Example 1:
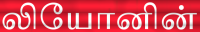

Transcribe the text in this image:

லியோனின்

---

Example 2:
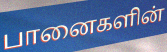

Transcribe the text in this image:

பானைகளின்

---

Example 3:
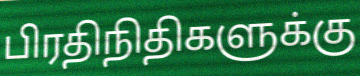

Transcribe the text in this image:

பிரதிநிதிகளுக்கு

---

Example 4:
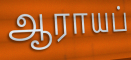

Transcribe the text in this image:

ஆராயப்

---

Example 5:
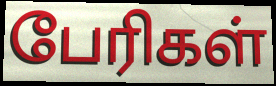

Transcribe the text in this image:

பேரிகள்